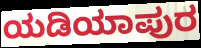
ಯಡಿಯಾಪುರ